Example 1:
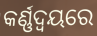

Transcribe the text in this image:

କର୍ଣ୍ଣଦ୍ୱୟରେ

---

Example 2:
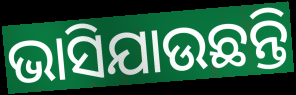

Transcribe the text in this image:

ଭାସିଯାଉଛନ୍ତି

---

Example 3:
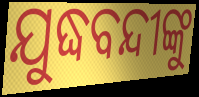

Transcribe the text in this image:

ଯୁଦ୍ଧବନ୍ଦୀଙ୍କୁ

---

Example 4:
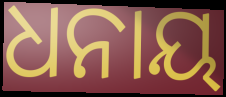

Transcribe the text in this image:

ଧନାୟ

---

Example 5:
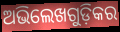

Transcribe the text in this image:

ଅଭିଲେଖଗୁଡ଼ିକର